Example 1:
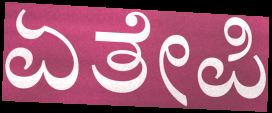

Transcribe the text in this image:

ಏತೇಪಿ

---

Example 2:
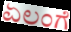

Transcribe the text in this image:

ಏಲಂಗೆ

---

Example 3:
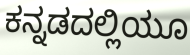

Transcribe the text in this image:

ಕನ್ನಡದಲ್ಲಿಯೂ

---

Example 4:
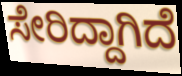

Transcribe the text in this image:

ಸೇರಿದ್ದಾಗಿದೆ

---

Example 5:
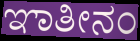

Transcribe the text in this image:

ಞಾತೀನಂ